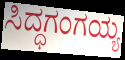
ಸಿದ್ಧಗಂಗಯ್ಯ